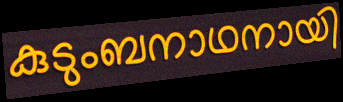
കുടുംബനാഥനായി